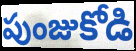
పుంజుకోడి